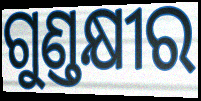
ଗୁଣ୍ଡକ୍ଷୀର